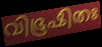
വിഭൂഷിതഃ